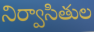
నిర్వాసితుల